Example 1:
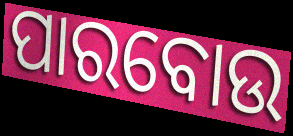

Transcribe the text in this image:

ପାରବୋଉ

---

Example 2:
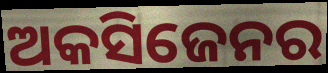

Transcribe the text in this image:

ଅକସିଜେନର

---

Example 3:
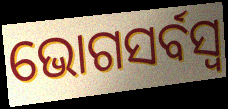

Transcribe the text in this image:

ଭୋଗସର୍ବସ୍ୱ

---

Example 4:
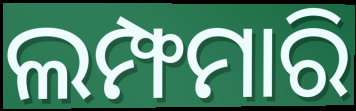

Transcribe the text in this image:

ଲମ୍ଫମାରି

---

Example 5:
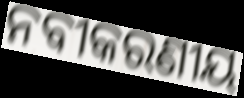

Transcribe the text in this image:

ନବୀକରଣୀୟ